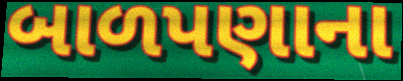
બાળપણાના